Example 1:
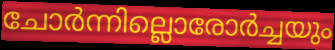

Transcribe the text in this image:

ചോർന്നില്ലൊരോർച്ചയും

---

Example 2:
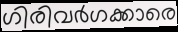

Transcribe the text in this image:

ഗിരിവർഗക്കാരെ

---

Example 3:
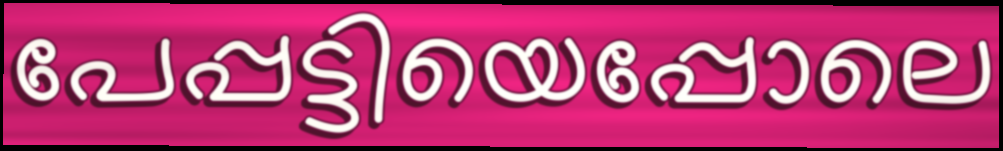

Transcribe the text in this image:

പേപ്പട്ടിയെപ്പോലെ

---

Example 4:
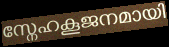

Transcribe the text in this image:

സ്നേഹകൂജനമായി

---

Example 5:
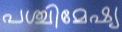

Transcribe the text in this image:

പശ്ചിമേഷ്യ